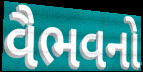
વૈભવનો